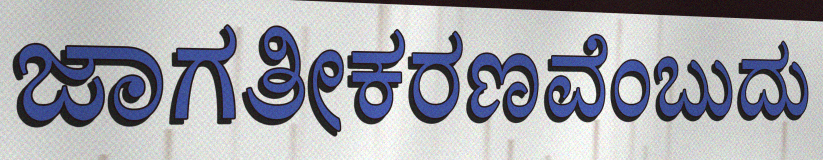
ಜಾಗತೀಕರಣವೆಂಬುದು